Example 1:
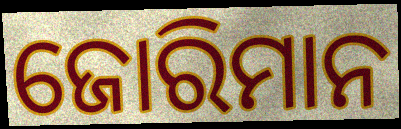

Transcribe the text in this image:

ଜୋରିମାନ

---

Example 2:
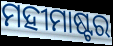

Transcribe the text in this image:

ମହୀମାଷ୍ଟର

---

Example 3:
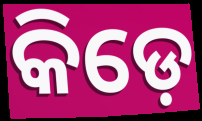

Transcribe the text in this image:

କିଡ଼େ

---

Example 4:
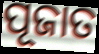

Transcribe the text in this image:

ପୂଜାତ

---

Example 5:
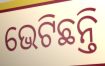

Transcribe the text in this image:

ଭେଟିଛନ୍ତି